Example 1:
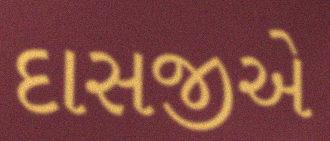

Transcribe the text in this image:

દાસજીએ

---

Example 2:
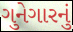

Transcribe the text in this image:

ગુનેગારનું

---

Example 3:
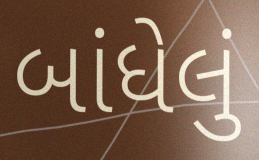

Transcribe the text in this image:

બાંધેલું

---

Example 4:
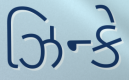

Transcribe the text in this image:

ઝિન્કે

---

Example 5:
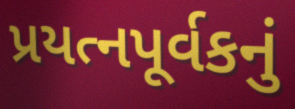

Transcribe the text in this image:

પ્રયત્નપૂર્વકનું